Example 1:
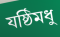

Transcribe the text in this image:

যষ্ঠিমধু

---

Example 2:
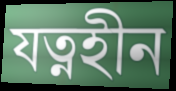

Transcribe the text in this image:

যত্নহীন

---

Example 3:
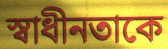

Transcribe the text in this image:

স্বাধীনতাকে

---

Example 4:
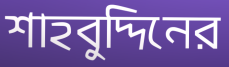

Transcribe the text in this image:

শাহবুদ্দিনের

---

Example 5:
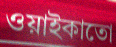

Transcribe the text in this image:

ওয়াইকাতো